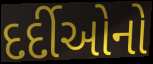
દર્દીઓનો